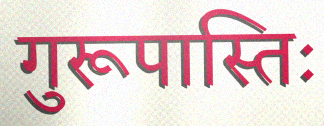
गुरूपास्तिः